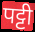
पट्टी